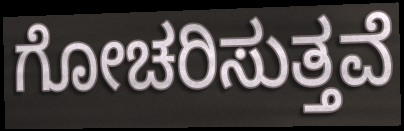
ಗೋಚರಿಸುತ್ತವೆ